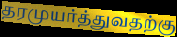
தரமுயர்த்துவதற்கு